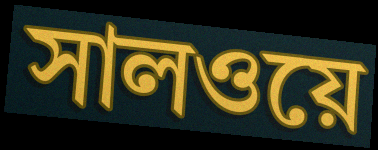
সালওয়ে